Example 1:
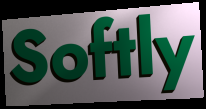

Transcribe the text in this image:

Softly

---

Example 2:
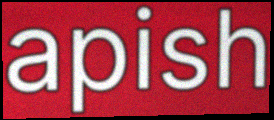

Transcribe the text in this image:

apish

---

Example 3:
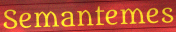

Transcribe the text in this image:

Semantemes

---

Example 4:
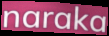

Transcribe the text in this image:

naraka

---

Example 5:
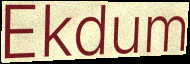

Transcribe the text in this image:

Ekdum